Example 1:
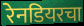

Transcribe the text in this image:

रेनडियरचा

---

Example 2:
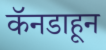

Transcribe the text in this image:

कॅनडाहून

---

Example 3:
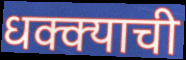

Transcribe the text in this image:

धक्क्याची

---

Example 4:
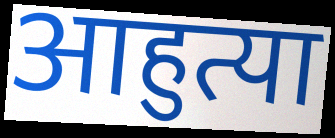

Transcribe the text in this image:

आहुत्या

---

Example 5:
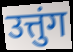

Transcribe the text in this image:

उत्तुंग